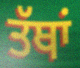
ਤੱਥਾਂ